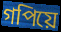
গপিয়ে